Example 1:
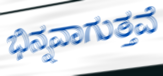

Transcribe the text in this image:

ಭಿನ್ನವಾಗುತ್ತವೆ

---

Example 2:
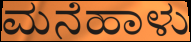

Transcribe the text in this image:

ಮನೆಹಾಳು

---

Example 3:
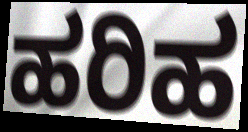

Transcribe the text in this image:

ಹರಿಹ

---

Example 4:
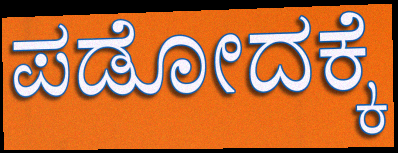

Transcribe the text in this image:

ಪಡೋದಕ್ಕೆ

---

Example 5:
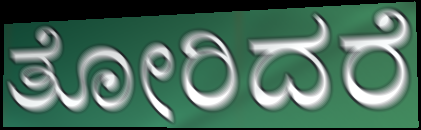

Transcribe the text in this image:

ತೋರಿದರೆ